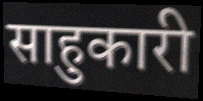
साहुकारी